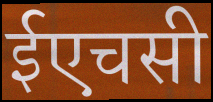
ईएचसी